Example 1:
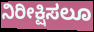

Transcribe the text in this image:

ನಿರೀಕ್ಷಿಸಲೂ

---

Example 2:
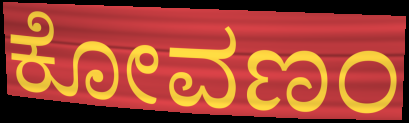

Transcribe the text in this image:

ಕೋವಣಂ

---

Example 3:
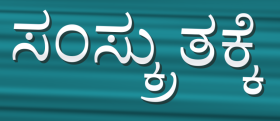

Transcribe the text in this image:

ಸಂಸ್ಕ್ರುತಕ್ಕೆ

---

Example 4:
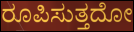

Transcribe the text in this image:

ರೂಪಿಸುತ್ತದೋ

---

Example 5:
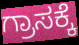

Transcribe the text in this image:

ಗ್ರಾಸಕ್ಕೆ